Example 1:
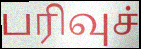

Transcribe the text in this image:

பரிவுச்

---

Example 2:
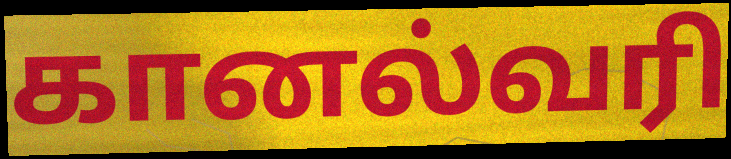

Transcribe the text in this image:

கானல்வரி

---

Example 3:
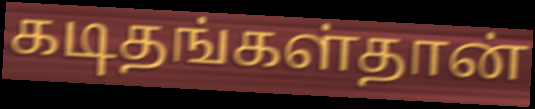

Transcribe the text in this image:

கடிதங்கள்தான்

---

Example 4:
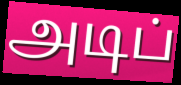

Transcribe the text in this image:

அடிப்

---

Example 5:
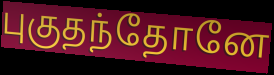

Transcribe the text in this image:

புகுதந்தோனே